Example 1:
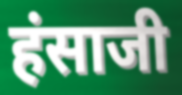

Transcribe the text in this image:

हंसाजी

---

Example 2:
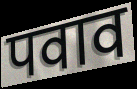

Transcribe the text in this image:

पवाव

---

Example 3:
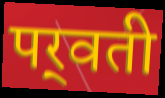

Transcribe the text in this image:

पर्वती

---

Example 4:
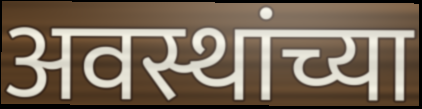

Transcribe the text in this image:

अवस्थांच्या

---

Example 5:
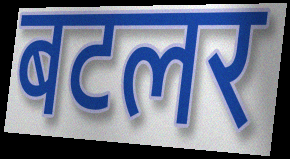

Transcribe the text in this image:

बटलर